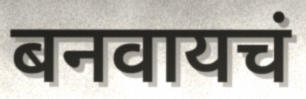
बनवायचं